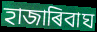
হাজাৰিবাঘ